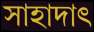
সাহাদাৎ